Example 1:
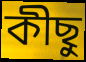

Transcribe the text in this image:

কীছু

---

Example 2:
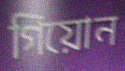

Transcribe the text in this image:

গিয়োন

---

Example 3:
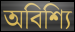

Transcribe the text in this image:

অবিশ্যি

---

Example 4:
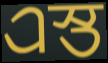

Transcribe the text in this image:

এস্ত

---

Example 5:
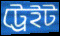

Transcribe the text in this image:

ট্রেইট